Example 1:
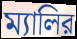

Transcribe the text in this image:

ম্যালির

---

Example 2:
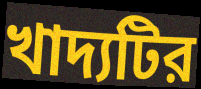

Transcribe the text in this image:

খাদ্যটির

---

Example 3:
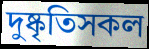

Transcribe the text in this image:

দুষ্কৃতিসকল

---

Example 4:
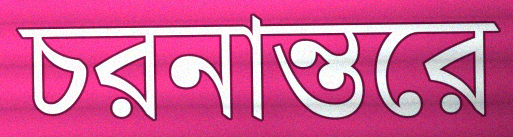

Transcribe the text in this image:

চরনান্তরে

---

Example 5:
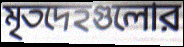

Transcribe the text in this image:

মৃতদেহগুলোর